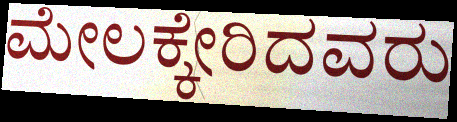
ಮೇಲಕ್ಕೇರಿದವರು